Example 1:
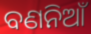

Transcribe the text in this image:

ବଣନିଆଁ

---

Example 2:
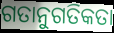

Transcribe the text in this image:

ଗତାନୁଗତିକତା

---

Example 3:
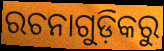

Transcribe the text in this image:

ରଚନାଗୁଡ଼ିକରୁ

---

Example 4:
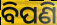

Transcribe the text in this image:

ବିପଣି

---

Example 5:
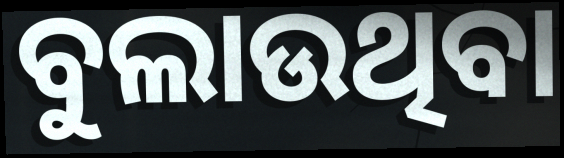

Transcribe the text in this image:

ବୁଲାଉଥିବା